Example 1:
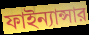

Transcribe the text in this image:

ফাইন্যান্সার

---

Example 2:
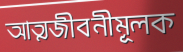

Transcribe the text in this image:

আত্মজীবনীমূলক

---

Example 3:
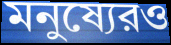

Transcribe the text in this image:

মনুষ্যেরও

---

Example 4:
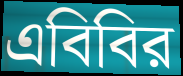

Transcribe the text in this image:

এবিবির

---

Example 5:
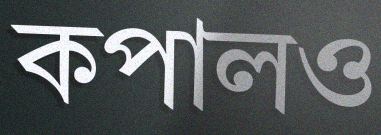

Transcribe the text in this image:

কপালও